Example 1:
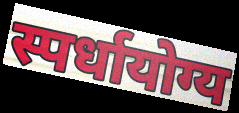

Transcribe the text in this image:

स्पर्धायोग्य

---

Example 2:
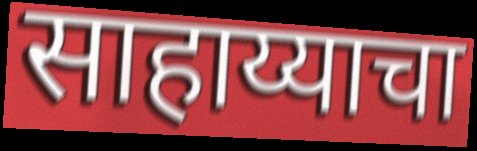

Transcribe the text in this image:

साहाय्याचा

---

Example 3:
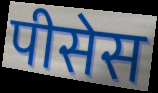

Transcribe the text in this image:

पीसेस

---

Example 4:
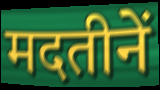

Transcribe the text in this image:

मदतीनें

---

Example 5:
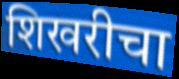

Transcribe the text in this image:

शिखरीचा